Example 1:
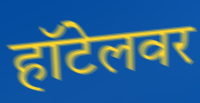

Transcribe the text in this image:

हॉटेलवर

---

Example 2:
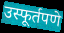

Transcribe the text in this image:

उस्फूर्तपणे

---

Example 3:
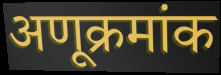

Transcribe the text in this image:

अणूक्रमांक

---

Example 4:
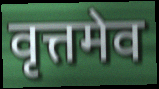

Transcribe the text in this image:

वृत्तमेव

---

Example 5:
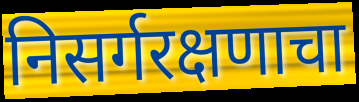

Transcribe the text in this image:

निसर्गरक्षणाचा